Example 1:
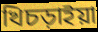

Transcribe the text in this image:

খিচড়াইয়া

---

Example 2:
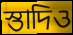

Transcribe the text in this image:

স্তাদিও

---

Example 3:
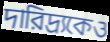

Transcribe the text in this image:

দারিদ্র্যকেও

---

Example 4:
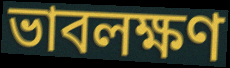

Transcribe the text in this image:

ভাবলক্ষণ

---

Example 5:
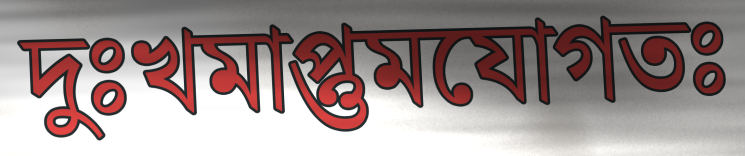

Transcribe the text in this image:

দুঃখমাপ্তুমযোগতঃ